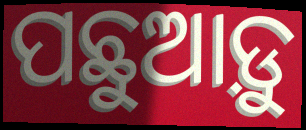
ପଛୁଆଡ଼ୁ